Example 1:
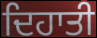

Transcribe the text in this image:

ਦਿਹਾਤੀ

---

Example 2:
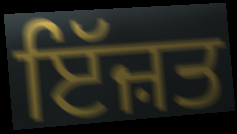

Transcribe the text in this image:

ਇੱਜ਼ਤ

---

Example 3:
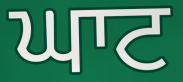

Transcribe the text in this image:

ਘਾਟ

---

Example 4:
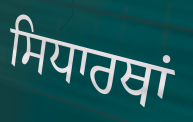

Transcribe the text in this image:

ਸਿਧਾਰਥਾਂ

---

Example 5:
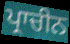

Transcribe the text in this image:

ਪ੍ਰਾਚੀਨ